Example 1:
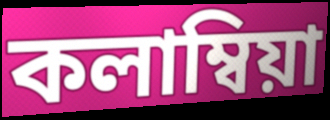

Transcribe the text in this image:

কলাম্বিয়া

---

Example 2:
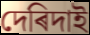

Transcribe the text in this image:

দেৰিদাই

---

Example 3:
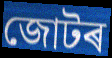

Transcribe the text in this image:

জোটৰ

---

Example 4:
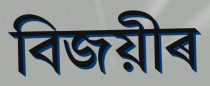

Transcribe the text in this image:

বিজয়ীৰ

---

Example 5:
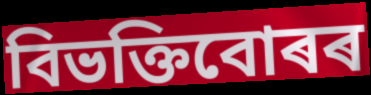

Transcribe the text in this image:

বিভক্তিবোৰৰ